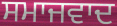
ਸਮਾਜਵਾਦ